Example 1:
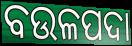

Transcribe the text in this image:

ବଉଳପଦା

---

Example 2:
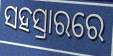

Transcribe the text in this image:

ସହସ୍ରାରରେ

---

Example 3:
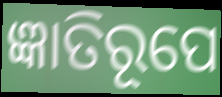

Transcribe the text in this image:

ଜ୍ଞାତିରୂପେ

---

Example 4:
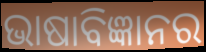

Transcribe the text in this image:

ଭାଷାବିଜ୍ଞାନର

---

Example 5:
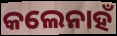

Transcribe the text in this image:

କଲେନାହଁ